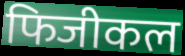
फिजीकल